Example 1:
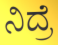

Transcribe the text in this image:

ನಿದ್ರೆ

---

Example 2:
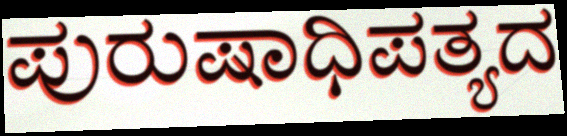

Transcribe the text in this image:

ಪುರುಷಾಧಿಪತ್ಯದ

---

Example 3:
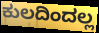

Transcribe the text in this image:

ಕುಲದಿಂದಲ್ಲ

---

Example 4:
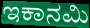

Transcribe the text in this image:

ಇಕಾನಮಿ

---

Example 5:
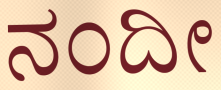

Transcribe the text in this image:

ನಂದೀ